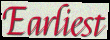
Earliest